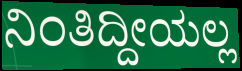
ನಿಂತಿದ್ದೀಯಲ್ಲ